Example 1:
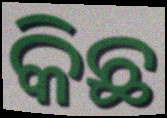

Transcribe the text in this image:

କିଛ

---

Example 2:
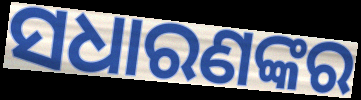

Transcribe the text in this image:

ସଧାରଣଙ୍କର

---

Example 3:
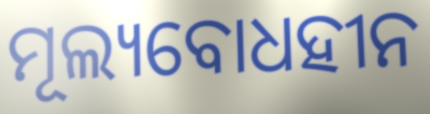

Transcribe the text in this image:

ମୂଲ୍ୟବୋଧହୀନ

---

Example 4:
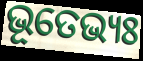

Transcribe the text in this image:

ଭୂତେଭ୍ୟଃ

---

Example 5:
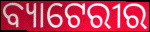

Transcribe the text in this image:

ବ୍ୟାଟେରୀର